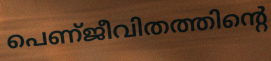
പെണ്ജീവിതത്തിന്റെ